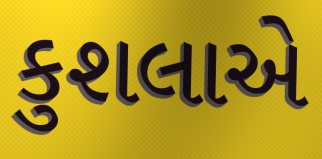
કુશલાએ